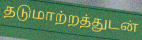
தடுமாற்றத்துடன்